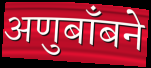
अणुबाँबने